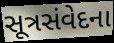
સૂત્રસંવેદના